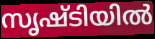
സൃഷ്ടിയിൽ